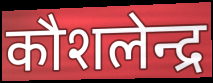
कौशलेन्द्र